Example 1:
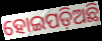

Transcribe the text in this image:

ହୋଇପଡ଼ିଅଛି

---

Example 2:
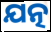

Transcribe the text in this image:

ଯତ୍ନ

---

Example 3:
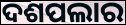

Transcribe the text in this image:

ଦଶପଲାର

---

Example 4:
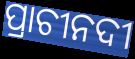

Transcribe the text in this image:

ପ୍ରାଚୀନଦୀ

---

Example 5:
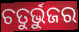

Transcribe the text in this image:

ଚତୁର୍ଭୁଜର